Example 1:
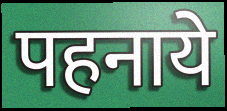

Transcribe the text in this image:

पहनाये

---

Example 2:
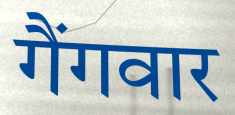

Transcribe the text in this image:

गैंगवार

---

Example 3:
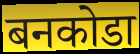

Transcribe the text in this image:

बनकोडा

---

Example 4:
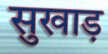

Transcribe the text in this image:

सुखाड़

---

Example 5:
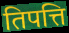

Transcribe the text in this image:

तिपत्ति